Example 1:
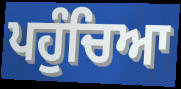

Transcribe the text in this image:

ਪਹੁੰਚਿਆ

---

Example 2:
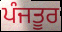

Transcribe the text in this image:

ਪੰਜਤੂਰ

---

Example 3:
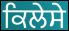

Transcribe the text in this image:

ਕਿਲੇਸੇ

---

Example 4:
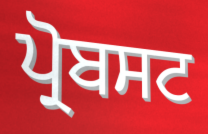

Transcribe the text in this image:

ਪ੍ਰੋਬਸਟ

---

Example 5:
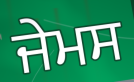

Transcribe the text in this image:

ਜੇਮਸ